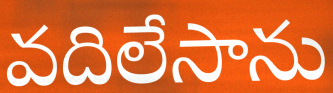
వదిలేసాను